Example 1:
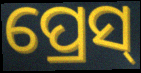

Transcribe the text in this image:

ପ୍ରେସ୍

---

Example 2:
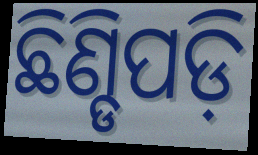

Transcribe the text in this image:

ଛିଣ୍ଡିପଡ଼ି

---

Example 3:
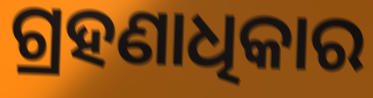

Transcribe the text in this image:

ଗ୍ରହଣାଧିକାର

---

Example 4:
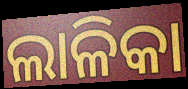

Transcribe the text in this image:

ଲାଳିକା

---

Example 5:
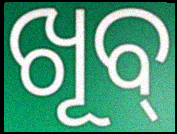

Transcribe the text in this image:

ଖୂବ୍